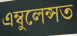
এম্বুলেন্সত